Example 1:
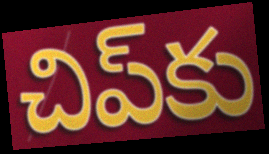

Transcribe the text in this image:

చిప్‌కు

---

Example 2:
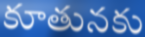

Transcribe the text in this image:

కూతునకు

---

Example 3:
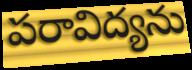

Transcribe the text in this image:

పరావిద్యను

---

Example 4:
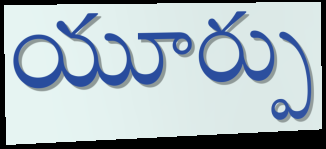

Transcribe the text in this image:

యూర్పు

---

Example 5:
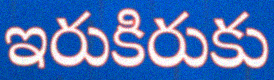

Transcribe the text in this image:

ఇరుకిరుకు